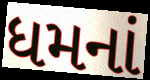
ધમનાં